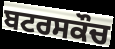
ਬਟਰਸਕੌਚ